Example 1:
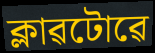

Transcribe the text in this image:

ক্লাৱটোৱে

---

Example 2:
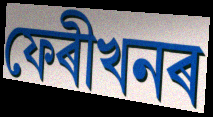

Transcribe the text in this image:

ফেৰীখনৰ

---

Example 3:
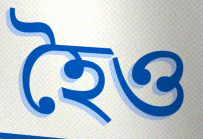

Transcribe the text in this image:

হৈও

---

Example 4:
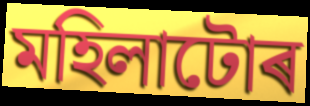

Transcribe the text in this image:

মহিলাটোৰ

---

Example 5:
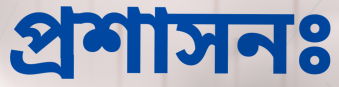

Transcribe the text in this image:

প্ৰশাসনঃ